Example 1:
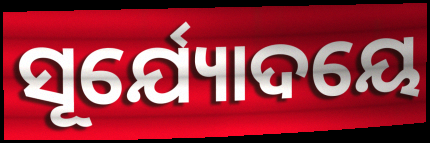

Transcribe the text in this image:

ସୂର୍ଯ୍ୟୋଦୟେ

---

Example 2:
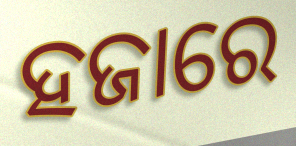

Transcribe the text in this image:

ହଜାରେ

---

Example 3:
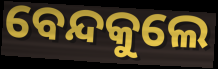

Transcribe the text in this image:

ବେନ୍ଦକୁଲେ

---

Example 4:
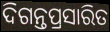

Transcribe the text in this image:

ଦିଗନ୍ତପ୍ରସାରିତ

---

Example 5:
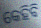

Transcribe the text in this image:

କେହିବି